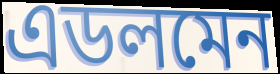
এডলমেন